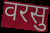
वरसु